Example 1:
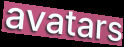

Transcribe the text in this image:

avatars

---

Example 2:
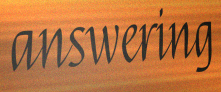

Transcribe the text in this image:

answering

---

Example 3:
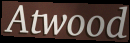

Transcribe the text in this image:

Atwood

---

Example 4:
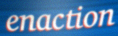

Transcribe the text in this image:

enaction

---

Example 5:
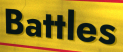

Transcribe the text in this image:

Battles